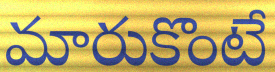
మారుకొంటే